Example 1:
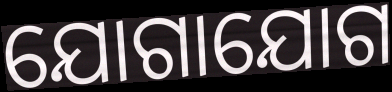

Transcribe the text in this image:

ଯୋଗାଯୋଗ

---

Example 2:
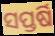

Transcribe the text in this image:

ସପ୍ତର୍ଷି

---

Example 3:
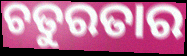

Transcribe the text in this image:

ଚତୁରତାର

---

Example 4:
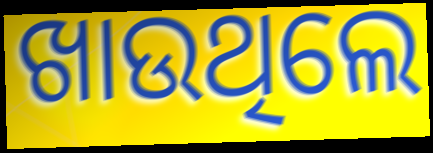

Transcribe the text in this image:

ଖାଉଥିଲେ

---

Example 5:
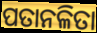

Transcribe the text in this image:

ପତାନଳିତା